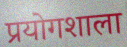
प्रयोगशाला